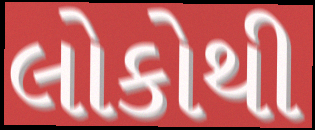
લોકોથી